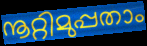
നൂറ്റിമുപ്പതാം